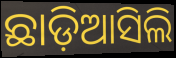
ଛାଡ଼ିଆସିଲି